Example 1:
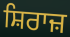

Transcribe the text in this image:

ਸ਼ਿਰਾਜ਼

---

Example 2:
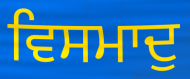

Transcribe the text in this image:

ਵਿਸਮਾਦੁ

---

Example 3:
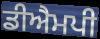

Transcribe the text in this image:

ਡੀਐਮਪੀ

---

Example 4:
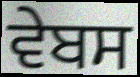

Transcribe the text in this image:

ਵੇਬਸ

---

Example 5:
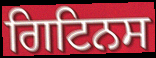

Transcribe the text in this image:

ਗਿਟਿਨਸ